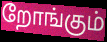
றோங்கும்